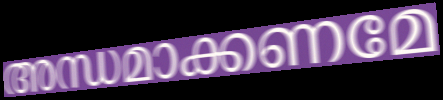
അന്ധമാക്കണമേ